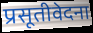
प्रसूतीवेदना